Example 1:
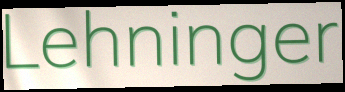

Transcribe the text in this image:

Lehninger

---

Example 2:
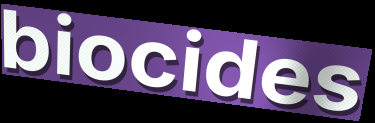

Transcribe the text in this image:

biocides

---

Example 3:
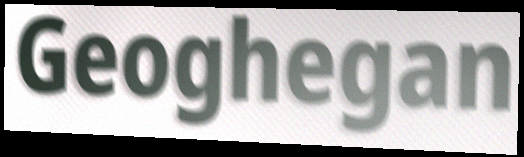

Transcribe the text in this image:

Geoghegan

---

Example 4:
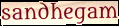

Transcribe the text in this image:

sandhegam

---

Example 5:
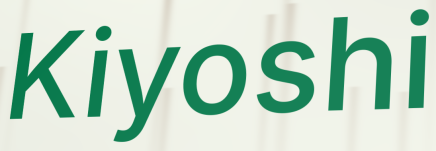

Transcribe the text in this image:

Kiyoshi